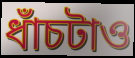
ধাঁচটাও